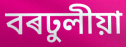
বৰঢুলীয়া